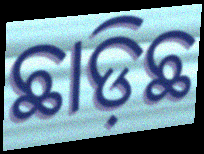
ଛାଡ଼ିଛ